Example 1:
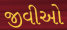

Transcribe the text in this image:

જીવીઓ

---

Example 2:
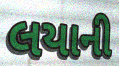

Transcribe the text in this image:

લયાની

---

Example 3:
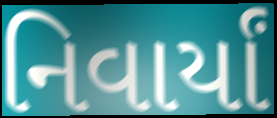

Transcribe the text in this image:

નિવાર્યાં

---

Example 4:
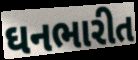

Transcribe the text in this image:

ઘનભારીત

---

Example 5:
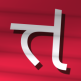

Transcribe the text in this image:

ત્ત